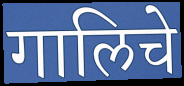
गालिचे